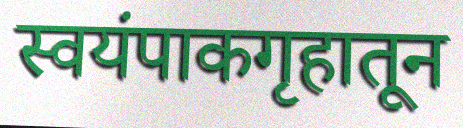
स्वयंपाकगृहातून